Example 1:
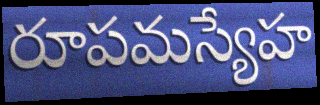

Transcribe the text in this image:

రూపమస్యేహ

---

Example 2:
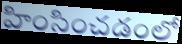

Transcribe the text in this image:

హింసించడంలో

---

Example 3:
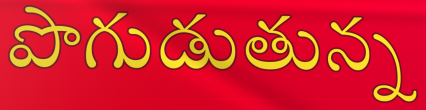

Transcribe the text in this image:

పొగుడుతున్న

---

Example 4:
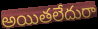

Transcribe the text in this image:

అయితలేదురా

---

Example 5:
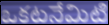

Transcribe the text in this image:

ఒకటనేమిటి